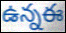
ఉన్నఈ